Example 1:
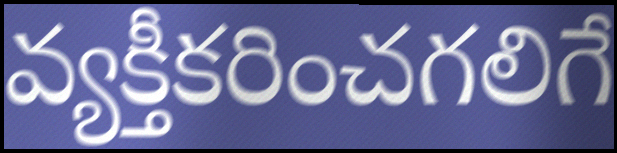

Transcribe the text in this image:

వ్యక్తీకరించగలిగే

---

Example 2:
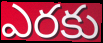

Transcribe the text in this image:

ఎరకు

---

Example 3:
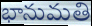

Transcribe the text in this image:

భానుమతి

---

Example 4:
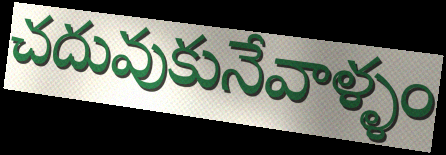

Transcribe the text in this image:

చదువుకునేవాళ్ళం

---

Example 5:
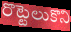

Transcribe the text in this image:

రొట్టెలుకొని